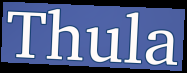
Thula